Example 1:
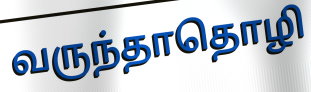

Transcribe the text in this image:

வருந்தாதொழி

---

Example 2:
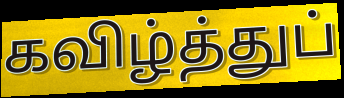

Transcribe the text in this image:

கவிழ்த்துப்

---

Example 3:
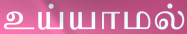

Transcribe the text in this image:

உய்யாமல்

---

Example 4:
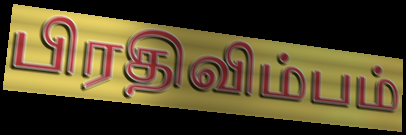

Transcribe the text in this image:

பிரதிவிம்பம்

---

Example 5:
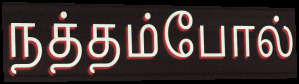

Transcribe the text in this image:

நத்தம்போல்